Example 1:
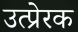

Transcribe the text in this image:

उत्प्रेरक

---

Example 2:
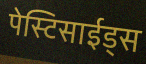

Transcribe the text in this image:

पेस्टिसाईड्स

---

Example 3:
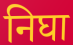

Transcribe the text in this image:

निघा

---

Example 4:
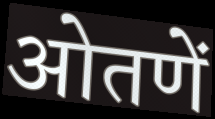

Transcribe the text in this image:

ओतणें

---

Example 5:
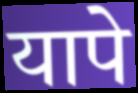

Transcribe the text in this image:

यापे